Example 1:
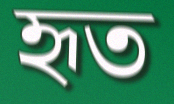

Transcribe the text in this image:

হৃত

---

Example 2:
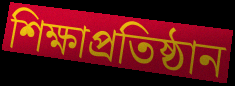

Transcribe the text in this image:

শিক্ষাপ্রতিষ্ঠান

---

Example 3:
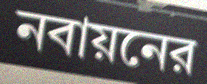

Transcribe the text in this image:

নবায়নের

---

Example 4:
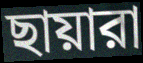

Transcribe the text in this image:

ছায়ারা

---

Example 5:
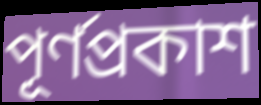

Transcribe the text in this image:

পূর্ণপ্রকাশ